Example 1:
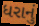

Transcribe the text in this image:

ધરાનું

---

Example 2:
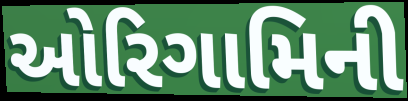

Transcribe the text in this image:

ઓરિગામિની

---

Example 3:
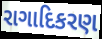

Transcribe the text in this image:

રાગાદિકરણ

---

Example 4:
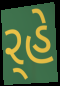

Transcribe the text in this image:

ર્‍હે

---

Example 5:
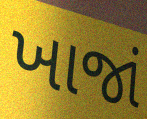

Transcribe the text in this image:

ખાજાં